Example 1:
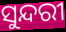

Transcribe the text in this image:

ସୁନ୍ଦରୀ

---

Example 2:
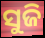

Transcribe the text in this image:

ସୁଜି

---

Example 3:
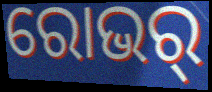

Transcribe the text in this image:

ରୋଭର୍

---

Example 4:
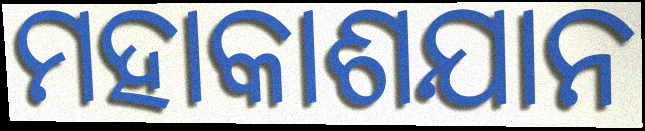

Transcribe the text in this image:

ମହାକାଶଯାନ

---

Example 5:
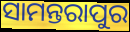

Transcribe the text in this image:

ସାମନ୍ତରାପୁର